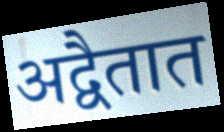
अद्वैतात